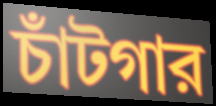
চাঁটগার